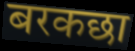
बरकछा